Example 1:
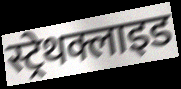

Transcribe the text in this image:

स्ट्रेथक्लाइड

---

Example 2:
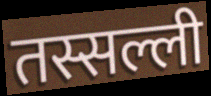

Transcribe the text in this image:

तस्सल्ली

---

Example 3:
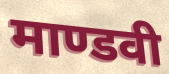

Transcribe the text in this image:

माण्डवी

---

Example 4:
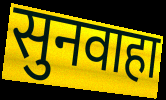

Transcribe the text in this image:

सुनवाहा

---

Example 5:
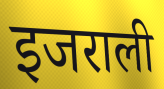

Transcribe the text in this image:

इजराली